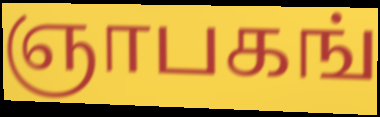
ஞாபகங்